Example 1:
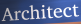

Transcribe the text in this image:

Architect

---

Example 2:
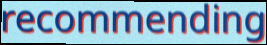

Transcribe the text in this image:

recommending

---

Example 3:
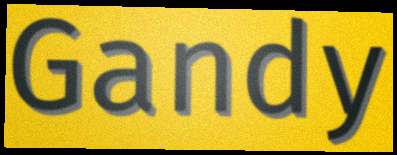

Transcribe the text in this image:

Gandy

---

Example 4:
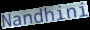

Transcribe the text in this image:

Nandhini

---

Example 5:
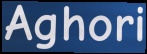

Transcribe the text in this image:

Aghori